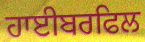
ਹਾਈਬਰਫਿਲ